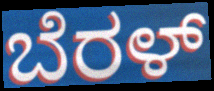
ಬೆರಳ್